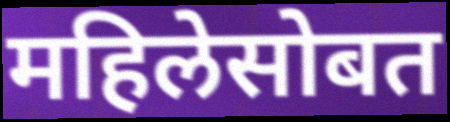
महिलेसोबत